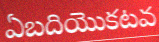
ఏబదియొకటవ